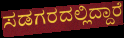
ಸಡಗರದಲ್ಲಿದ್ದಾರೆ